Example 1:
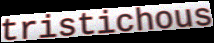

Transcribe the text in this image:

tristichous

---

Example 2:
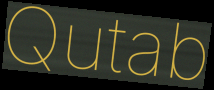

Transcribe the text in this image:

Qutab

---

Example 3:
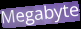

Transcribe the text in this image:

Megabyte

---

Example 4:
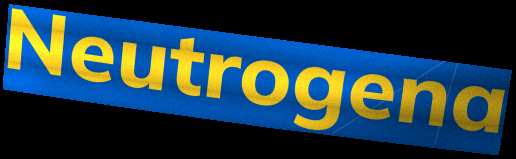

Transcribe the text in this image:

Neutrogena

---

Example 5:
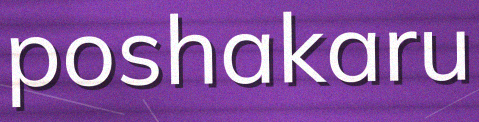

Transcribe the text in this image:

poshakaru